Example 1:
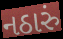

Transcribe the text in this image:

નઠારું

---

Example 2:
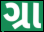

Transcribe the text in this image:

ગ્રા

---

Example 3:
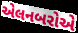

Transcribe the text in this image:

એલનબરોએ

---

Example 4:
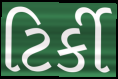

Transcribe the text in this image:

ટિર્કી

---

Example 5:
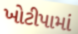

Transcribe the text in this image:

ખોટીપામાં